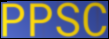
PPSC